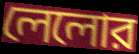
লেলোর